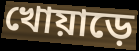
খোয়াড়ে